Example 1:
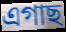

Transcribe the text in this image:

এগাছ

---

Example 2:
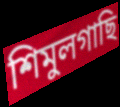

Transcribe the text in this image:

শিমুলগাছি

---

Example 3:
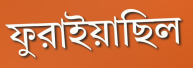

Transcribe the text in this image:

ফুরাইয়াছিল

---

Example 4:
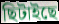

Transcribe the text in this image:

ছিটাইছে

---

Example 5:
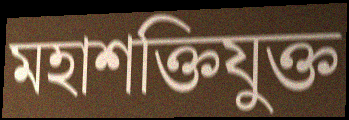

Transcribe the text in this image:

মহাশক্তিযুক্ত